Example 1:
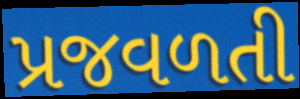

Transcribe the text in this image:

પ્રજવળતી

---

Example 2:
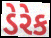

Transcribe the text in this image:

ડેરેક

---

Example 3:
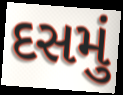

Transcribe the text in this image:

દસમું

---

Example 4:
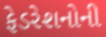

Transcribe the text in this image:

ફેડરેશનોની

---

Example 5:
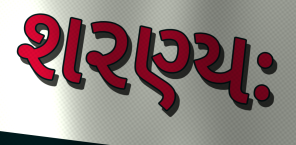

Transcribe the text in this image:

શરણ્યઃ